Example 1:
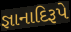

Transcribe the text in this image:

જ્ઞાનાદિરૂપે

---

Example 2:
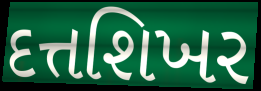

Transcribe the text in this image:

દત્તશિખર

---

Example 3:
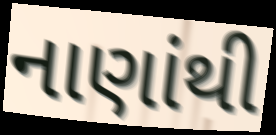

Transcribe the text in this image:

નાણાંથી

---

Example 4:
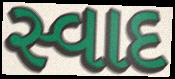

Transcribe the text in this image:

સ્વાદ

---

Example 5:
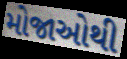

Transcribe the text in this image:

મોજાઓથી